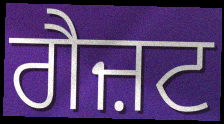
ਗੈਜ਼ਟ